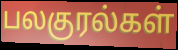
பலகுரல்கள்